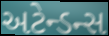
અટેન્ડન્સ